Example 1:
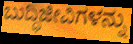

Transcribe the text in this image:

ಬುದ್ಧಿಜೀವಿಗಳನ್ನು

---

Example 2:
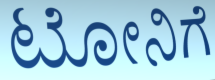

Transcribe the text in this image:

ಟೋನಿಗೆ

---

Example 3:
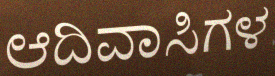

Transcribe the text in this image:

ಆದಿವಾಸಿಗಳ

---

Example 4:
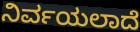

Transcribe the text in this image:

ನಿರ್ವಯಲಾದೆ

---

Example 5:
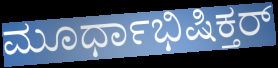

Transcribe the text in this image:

ಮೂರ್ಧಾಭಿಷಿಕ್ತರ್